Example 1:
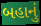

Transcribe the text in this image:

બહાનું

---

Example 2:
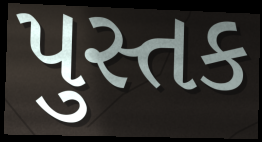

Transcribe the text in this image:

પુસ્તક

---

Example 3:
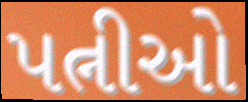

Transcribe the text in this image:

પત્નીઓ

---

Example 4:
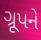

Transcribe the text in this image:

ગ્રૂપને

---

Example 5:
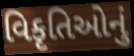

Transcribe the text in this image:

વિકૃતિઓનું